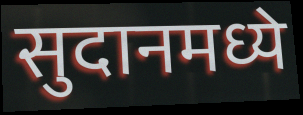
सुदानमध्ये